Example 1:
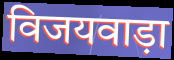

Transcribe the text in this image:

विजयवाड़ा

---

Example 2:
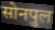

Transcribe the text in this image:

सोनपुल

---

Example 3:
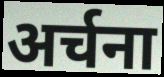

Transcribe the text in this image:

अर्चना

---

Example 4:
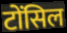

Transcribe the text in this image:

टोंसिल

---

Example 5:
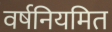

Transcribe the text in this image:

वर्षनियमित